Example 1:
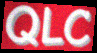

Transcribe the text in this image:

QLC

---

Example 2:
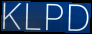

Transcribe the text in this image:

KLPD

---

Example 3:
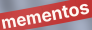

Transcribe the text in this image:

mementos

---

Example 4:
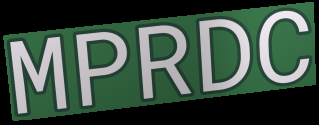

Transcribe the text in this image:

MPRDC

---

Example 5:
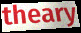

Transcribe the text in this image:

theary